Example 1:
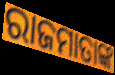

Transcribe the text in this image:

ରାଜମାତାଙ୍କ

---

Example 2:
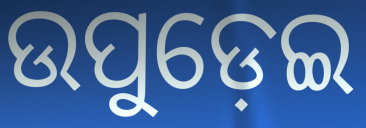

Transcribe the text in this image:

ଉପୁଡ଼େଇ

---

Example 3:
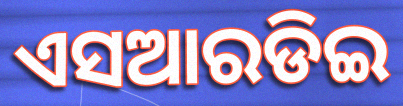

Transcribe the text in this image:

ଏସଆରଡିଇ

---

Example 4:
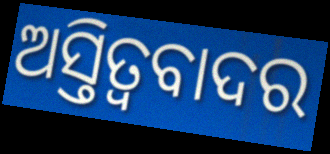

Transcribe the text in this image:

ଅସ୍ତିତ୍ବବାଦର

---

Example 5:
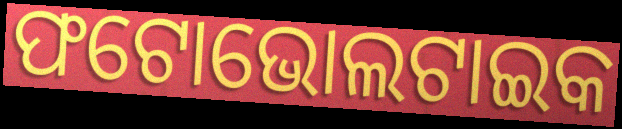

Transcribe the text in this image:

ଫଟୋଭୋଲଟାଇକ